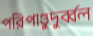
পরিপাণ্ডুদুর্ব্বল